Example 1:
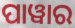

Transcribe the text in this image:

ପାୱାର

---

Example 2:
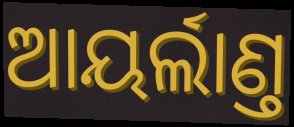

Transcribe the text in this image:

ଆୟର୍ଲାଣ୍ତ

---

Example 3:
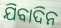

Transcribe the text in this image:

ଯିବାଦିନ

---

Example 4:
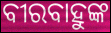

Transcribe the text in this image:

ବୀରବାହୁଙ୍କ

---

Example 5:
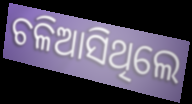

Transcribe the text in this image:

ଚଳିଆସିଥିଲେ